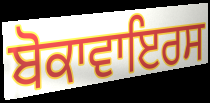
ਬੋਕਾਵਾਇਰਸ